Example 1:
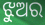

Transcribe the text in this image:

ଝୁଅର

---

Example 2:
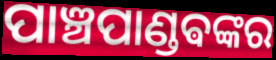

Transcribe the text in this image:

ପାଞ୍ଚପାଣ୍ଡଵଙ୍କର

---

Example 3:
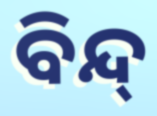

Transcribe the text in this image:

ବିନ୍ଦ୍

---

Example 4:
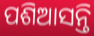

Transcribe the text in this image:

ପଶିଆସନ୍ତି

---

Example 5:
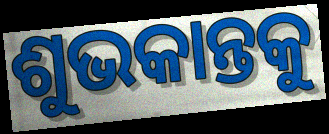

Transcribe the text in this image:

ଶୁଭକାନ୍ତକୁ